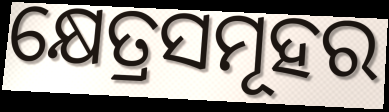
କ୍ଷେତ୍ରସମୂହର